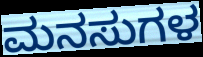
ಮನಸುಗಳ